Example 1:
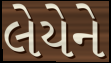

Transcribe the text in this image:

લેયેને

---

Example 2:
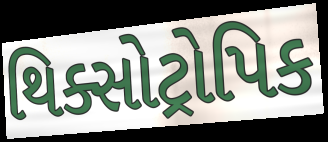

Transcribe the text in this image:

થિક્સોટ્રોપિક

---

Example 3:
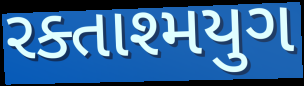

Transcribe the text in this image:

રક્તાશ્મયુગ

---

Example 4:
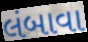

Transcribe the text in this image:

લંબાવા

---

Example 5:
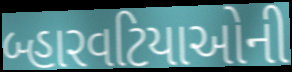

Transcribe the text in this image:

બ્હારવટિયાઓની